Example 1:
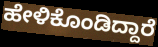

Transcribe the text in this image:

ಹೇಳಿಕೊಂಡಿದ್ದಾರೆ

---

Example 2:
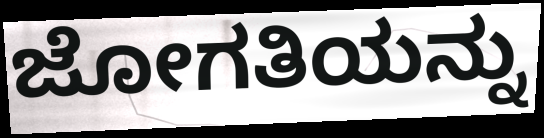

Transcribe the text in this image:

ಜೋಗತಿಯನ್ನು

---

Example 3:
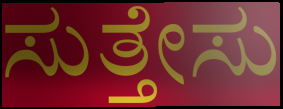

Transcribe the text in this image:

ಸುತ್ತೇಸು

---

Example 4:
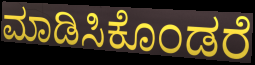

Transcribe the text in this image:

ಮಾಡಿಸಿಕೊಂಡರೆ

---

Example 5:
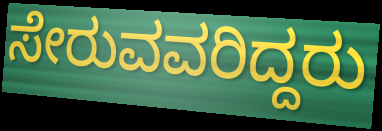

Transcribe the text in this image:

ಸೇರುವವರಿದ್ದರು